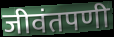
जीवंतपणी